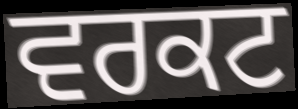
ਵਰਕਟ